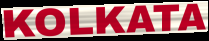
KOLKATA